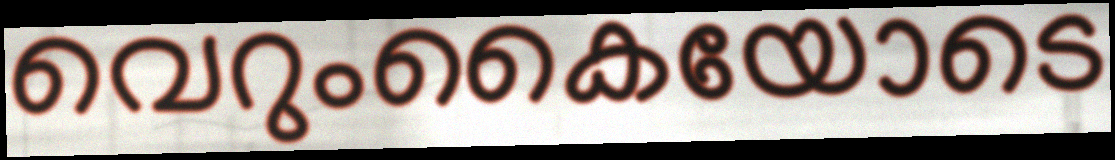
വെറുംകൈയോടെ